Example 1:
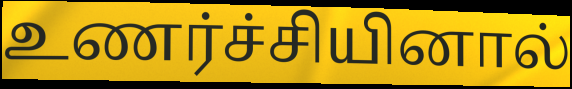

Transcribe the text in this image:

உணர்ச்சியினால்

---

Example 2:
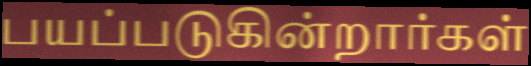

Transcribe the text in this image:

பயப்படுகின்றார்கள்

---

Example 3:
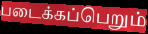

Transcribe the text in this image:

படைக்கப்பெறும்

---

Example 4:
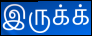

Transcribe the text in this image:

இருக்க்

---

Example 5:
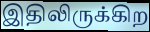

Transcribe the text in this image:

இதிலிருக்கிற